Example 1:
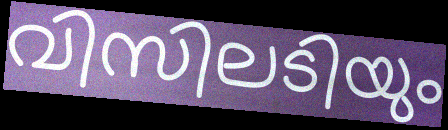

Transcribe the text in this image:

വിസിലടിയും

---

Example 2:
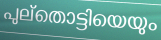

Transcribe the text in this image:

പുല്തൊട്ടിയെയും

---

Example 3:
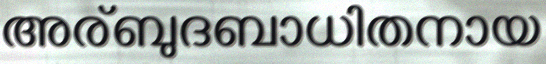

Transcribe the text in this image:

അര്ബുദബാധിതനായ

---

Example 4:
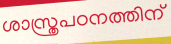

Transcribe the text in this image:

ശാസ്ത്രപഠനത്തിന്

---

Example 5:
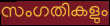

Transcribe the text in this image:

സംഗതികളും